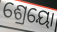
ଶ୍ରେୟୋ